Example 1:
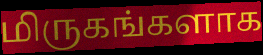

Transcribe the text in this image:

மிருகங்களாக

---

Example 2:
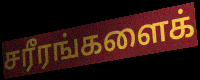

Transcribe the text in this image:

சரீரங்களைக்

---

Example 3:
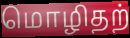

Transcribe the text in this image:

மொழிதற்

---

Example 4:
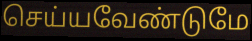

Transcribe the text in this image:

செய்யவேண்டுமே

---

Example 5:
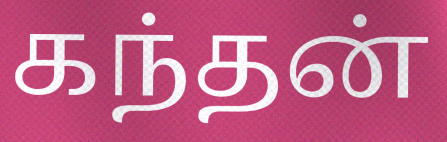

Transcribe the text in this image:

கந்தன்